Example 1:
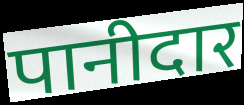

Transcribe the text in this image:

पानीदार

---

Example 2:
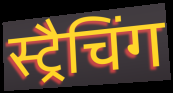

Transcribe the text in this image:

स्ट्रैचिंग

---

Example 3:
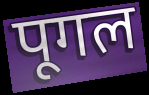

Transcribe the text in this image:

पूगल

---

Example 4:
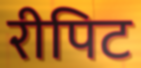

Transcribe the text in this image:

रीपिट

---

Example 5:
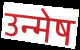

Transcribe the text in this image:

उन्मेष